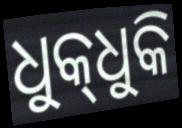
ଧୁକ୍‌ଧୁକି